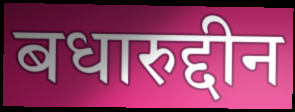
बधारुद्दीन